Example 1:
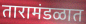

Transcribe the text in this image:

तारामंडळात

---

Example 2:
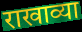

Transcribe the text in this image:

राखाव्या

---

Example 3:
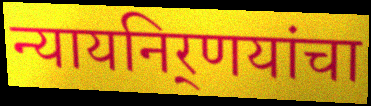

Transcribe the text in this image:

न्यायनिर्णयांचा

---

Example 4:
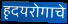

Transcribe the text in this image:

हृदयरोगाचे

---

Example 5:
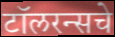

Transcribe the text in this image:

टॉलरन्सचे